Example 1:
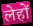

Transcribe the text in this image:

लेहों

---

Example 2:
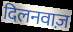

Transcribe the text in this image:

दिलनवाज़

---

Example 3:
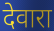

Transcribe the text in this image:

देवारा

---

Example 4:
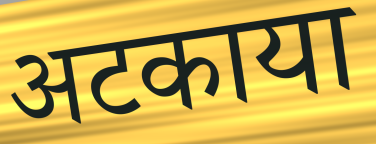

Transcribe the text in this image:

अटकाया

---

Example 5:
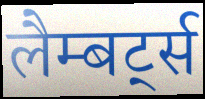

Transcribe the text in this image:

लैम्बर्ट्स